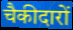
चैकीदारों